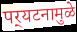
पर्यटनामुळे